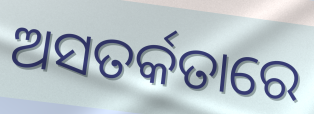
ଅସତର୍କତାରେ